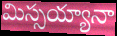
మిస్సయ్యానా